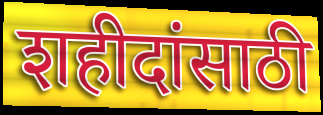
शहीदांसाठी